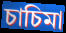
চাচিমা